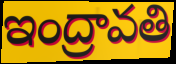
ఇంద్రావతి